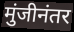
मुंजीनंतर